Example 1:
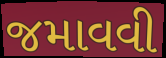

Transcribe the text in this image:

જમાવવી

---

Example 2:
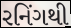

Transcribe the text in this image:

રનિંગથી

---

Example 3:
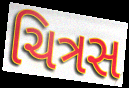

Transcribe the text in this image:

ચિત્રસ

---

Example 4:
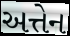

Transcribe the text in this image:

અત્તેન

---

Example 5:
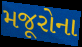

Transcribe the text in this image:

મજૂરોના